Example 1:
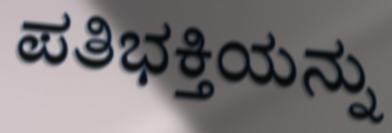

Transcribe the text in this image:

ಪತಿಭಕ್ತಿಯನ್ನು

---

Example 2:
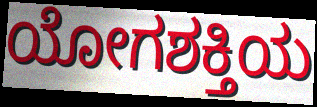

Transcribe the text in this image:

ಯೋಗಶಕ್ತಿಯ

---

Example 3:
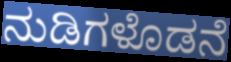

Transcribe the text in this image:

ನುಡಿಗಳೊಡನೆ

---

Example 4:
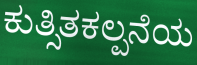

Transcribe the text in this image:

ಕುತ್ಸಿತಕಲ್ಪನೆಯ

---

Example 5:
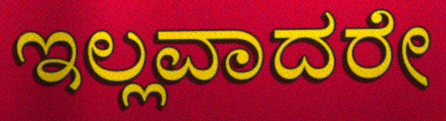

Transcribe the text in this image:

ಇಲ್ಲವಾದರೇ